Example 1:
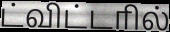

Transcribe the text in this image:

ட்விட்டரில்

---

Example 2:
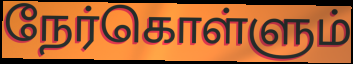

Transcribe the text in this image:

நேர்கொள்ளும்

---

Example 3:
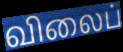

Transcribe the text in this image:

விலைப்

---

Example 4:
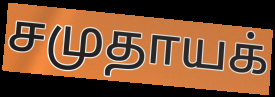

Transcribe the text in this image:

சமுதாயக்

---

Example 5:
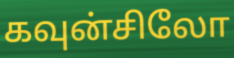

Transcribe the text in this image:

கவுன்சிலோ